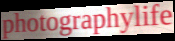
photographylife